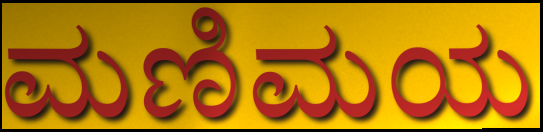
ಮಣಿಮಯ